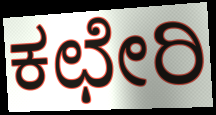
ಕಛೇರಿ